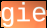
gie